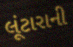
લૂંટારાની